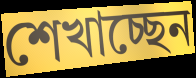
শেখাচ্ছেন